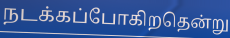
நடக்கப்போகிறதென்று